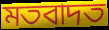
মতবাদত